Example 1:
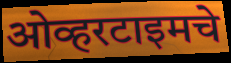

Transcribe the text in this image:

ओव्हरटाइमचे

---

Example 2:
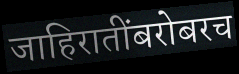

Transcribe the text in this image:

जाहिरातींबरोबरच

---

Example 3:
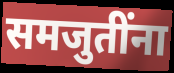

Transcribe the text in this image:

समजुतींना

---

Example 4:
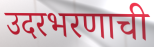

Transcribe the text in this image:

उदरभरणाची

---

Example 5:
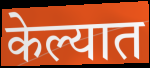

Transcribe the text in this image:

केल्यात